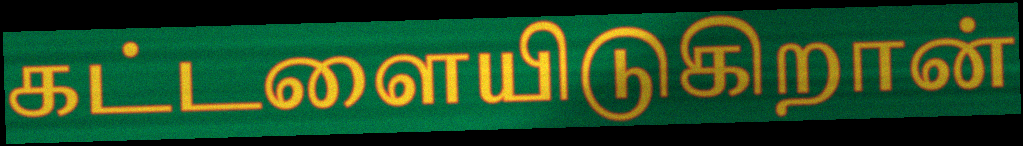
கட்டளையிடுகிறான்